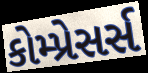
કોમ્પ્રેસર્સ